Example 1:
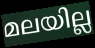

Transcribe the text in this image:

മലയില്ല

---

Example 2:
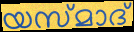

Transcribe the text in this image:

യസ്മാദ്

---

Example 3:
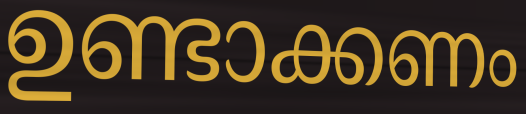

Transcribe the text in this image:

ഉണ്ടാക്കണം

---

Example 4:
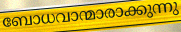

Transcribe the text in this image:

ബോധവാന്മാരാക്കുന്നു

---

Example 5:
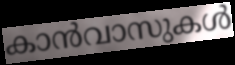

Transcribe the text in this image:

കാൻവാസുകൾ